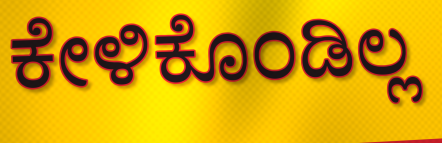
ಕೇಳಿಕೊಂಡಿಲ್ಲ